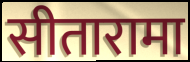
सीतारामा